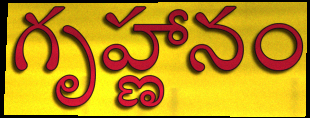
గృహ్ణానం